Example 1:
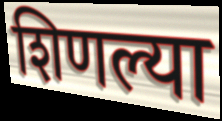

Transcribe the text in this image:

शिणल्या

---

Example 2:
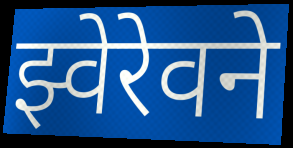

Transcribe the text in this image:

झ्वेरेवने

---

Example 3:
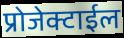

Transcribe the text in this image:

प्रोजेक्टाईल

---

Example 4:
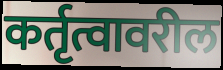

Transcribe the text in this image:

कर्तृत्वावरील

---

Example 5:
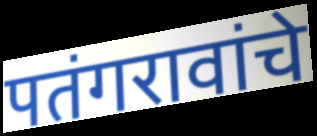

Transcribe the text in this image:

पतंगरावांचे